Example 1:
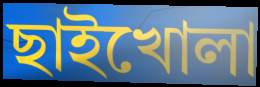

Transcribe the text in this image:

ছাইখোলা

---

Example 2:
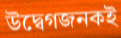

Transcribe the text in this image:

উদ্বেগজনকই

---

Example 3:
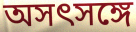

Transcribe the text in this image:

অসৎসঙ্গে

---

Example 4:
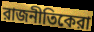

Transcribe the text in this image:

রাজনীতিকেরা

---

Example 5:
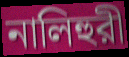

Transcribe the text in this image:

নালিহুরী